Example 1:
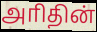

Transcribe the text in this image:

அரிதின்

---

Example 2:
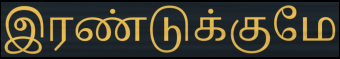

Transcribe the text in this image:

இரண்டுக்குமே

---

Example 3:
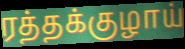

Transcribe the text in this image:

ரத்தக்குழாய்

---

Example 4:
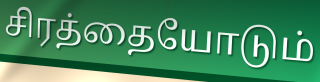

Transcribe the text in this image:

சிரத்தையோடும்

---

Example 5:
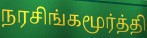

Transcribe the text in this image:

நரசிங்கமூர்த்தி